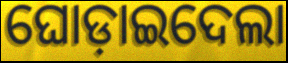
ଘୋଡ଼ାଇଦେଲା